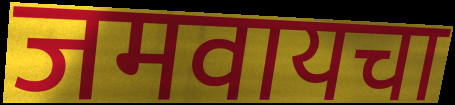
जमवायचा